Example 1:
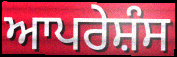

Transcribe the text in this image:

ਆਪਰੇਸ਼ੰਸ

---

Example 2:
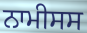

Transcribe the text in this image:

ਨਾਮੀਸਸ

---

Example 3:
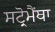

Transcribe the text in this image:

ਸਟ੍ਰੋਮੈਂਥਾ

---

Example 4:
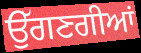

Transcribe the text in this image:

ਉੱਗਣਗੀਆਂ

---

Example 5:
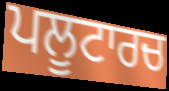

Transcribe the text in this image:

ਪਲੂਟਾਰਚ